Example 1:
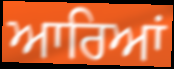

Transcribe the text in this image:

ਆਰਿਆਂ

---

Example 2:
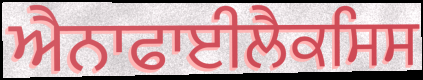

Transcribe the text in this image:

ਐਨਾਫਾਈਲੈਕਸਿਸ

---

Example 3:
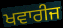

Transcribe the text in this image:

ਖਵਾਰੀਜ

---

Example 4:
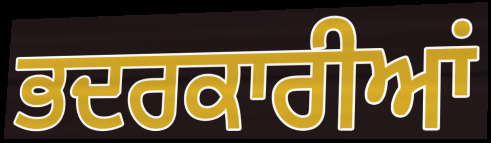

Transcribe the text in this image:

ਭਦਰਕਾਰੀਆਂ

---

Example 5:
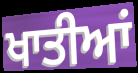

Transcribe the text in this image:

ਖਾਤੀਆਂ